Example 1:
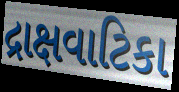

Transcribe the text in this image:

દ્રાક્ષવાટિકા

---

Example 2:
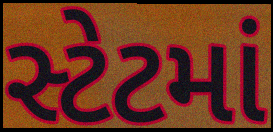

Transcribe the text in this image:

સ્ટેટમાં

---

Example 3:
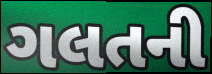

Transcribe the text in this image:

ગલતની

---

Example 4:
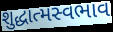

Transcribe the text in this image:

શુદ્ધાત્મસ્વભાવ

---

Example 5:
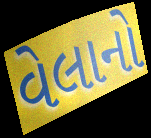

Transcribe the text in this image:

વેલાનો